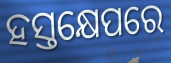
ହସ୍ତକ୍ଷେପରେ